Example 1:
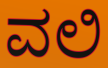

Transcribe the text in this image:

ವಲಿ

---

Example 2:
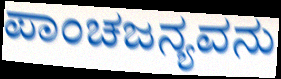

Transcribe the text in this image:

ಪಾಂಚಜನ್ಯವನು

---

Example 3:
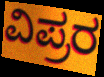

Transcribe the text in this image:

ವಿಪ್ರರ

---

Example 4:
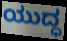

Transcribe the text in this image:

ಯುದ್ಧ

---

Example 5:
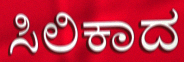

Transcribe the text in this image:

ಸಿಲಿಕಾದ